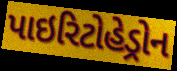
પાઇરિટોહેડ્રોન